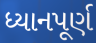
ધ્યાનપૂર્ણ